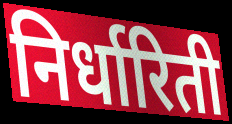
निर्धारिती